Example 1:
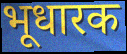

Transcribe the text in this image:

भूधारक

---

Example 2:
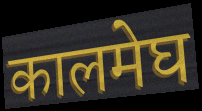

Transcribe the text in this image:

कालमेघ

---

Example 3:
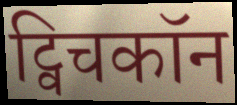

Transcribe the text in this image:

ट्विचकॉन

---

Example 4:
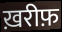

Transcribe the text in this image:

ख़रीफ़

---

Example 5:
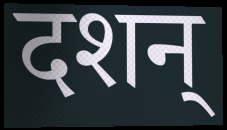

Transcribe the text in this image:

दशन्